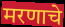
मरणाचे